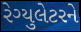
રેગ્યુલેટરને